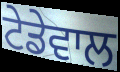
ਟੇਡੇਵਾਲ